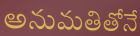
అనుమతితోనే